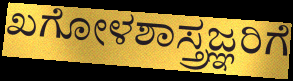
ಖಗೋಳಶಾಸ್ತ್ರಜ್ಞರಿಗೆ